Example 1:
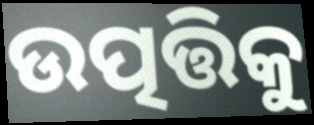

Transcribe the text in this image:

ଉତ୍ପତ୍ତିକୁ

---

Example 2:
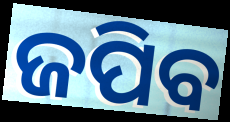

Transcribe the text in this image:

ଜପିବ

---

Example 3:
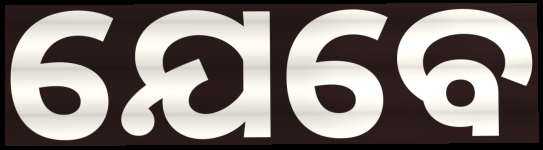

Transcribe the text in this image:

ଯେବେ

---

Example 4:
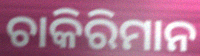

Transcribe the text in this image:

ଚାକିରିମାନ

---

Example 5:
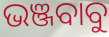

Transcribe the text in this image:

ଭଞ୍ଜବାବୁ